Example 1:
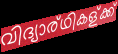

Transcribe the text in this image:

വിദ്യാര്ഥികള്ക്ക്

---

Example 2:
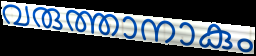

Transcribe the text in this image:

വരുത്താനാകും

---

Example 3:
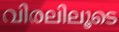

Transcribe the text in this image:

വിരലിലൂടെ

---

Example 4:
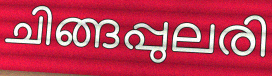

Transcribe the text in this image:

ചിങ്ങപ്പുലരി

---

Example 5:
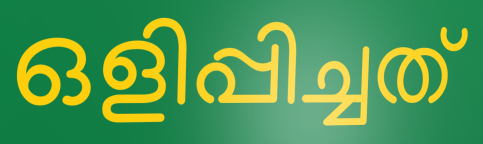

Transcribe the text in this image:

ഒളിപ്പിച്ചത്